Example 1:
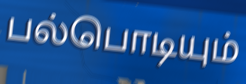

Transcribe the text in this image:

பல்பொடியும்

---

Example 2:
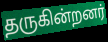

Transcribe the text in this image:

தருகின்றனர்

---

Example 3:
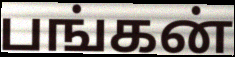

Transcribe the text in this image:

பங்கன்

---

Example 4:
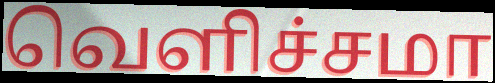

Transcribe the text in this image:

வெளிச்சமா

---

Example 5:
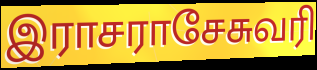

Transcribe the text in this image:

இராசராசேசுவரி